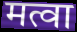
मत्वा